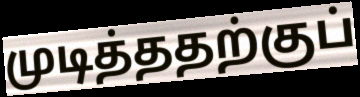
முடித்ததற்குப்